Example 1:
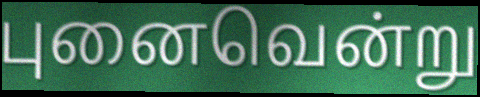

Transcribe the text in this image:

புனைவென்று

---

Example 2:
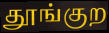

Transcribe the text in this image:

தூங்குற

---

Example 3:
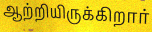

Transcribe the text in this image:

ஆற்றியிருக்கிறார்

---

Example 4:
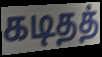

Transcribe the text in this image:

கடிதத்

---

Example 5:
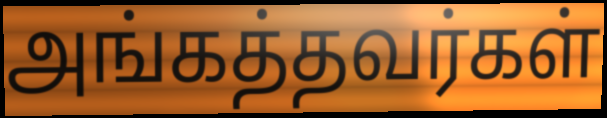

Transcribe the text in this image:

அங்கத்தவர்கள்